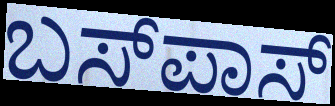
ಬಸ್‍ಪಾಸ್